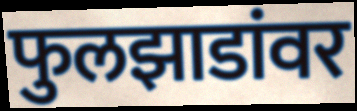
फुलझाडांवर